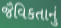
જૈવિકતાનું